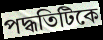
পদ্ধতিটিকে